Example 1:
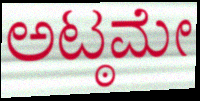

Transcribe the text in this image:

ಅಟ್ಠಮೇ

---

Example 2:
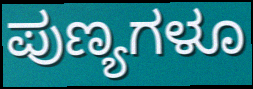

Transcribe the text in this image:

ಪುಣ್ಯಗಳೂ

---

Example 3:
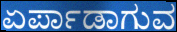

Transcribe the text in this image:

ಏರ್ಪಾಡಾಗುವ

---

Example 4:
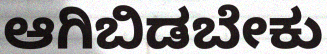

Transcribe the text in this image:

ಆಗಿಬಿಡಬೇಕು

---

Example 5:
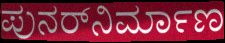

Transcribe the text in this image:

ಪುನರ್‌ನಿರ್ಮಾಣ